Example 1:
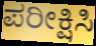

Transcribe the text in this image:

ಪರೀಕ್ಷಿಸಿ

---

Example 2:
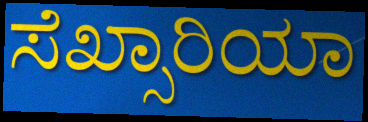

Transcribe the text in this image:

ಸೆಖ್ಸಾರಿಯಾ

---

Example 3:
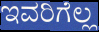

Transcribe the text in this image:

ಇವರಿಗೆಲ್ಲ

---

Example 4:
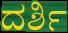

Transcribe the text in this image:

ದರ್ಶಿ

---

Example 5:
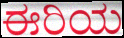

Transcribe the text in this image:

ಈರಿಯ